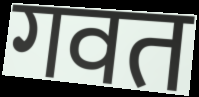
गवत